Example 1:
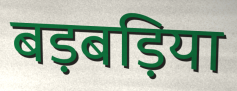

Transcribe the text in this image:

बड़बड़िया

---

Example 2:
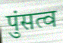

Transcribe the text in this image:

पुंसत्व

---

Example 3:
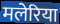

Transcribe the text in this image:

मलेरिया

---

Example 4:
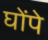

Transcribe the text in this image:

घोंपे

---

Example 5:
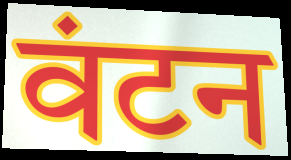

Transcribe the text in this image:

वंटन